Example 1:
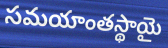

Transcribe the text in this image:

సమయాంతస్థాయై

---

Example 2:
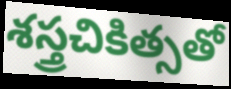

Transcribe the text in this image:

శస్త్రచికిత్సతో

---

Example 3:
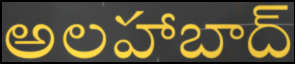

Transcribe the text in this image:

అలహాబాద్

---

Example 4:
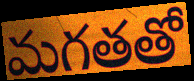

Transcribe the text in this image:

మగతతో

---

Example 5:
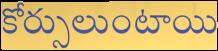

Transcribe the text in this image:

కోర్సులుంటాయి